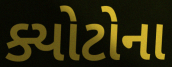
ક્યોટોના